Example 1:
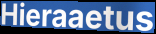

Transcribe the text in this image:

Hieraaetus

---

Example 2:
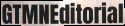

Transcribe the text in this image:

GTMNEditorial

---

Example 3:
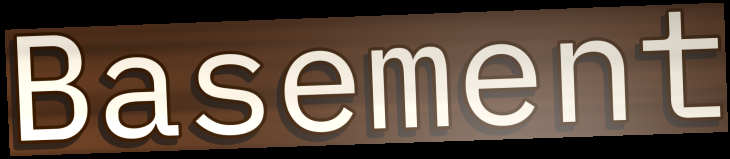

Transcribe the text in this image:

Basement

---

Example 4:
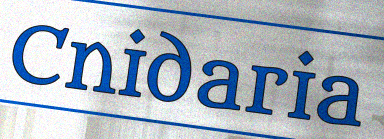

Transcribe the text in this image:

Cnidaria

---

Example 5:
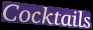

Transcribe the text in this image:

Cocktails